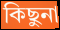
কিছুনা